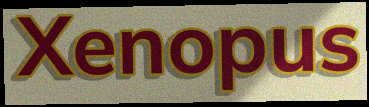
Xenopus